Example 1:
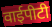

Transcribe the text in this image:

वाईपीटी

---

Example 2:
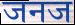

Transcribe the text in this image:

जनज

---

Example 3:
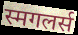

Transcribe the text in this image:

स्‍मगलर्स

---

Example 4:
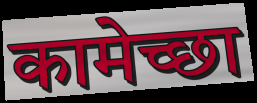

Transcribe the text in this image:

कामेच्छा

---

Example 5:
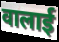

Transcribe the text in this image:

वालाई